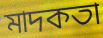
মাদকতা